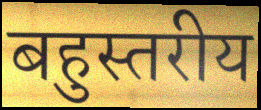
बहुस्तरीय